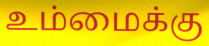
உம்மைக்கு